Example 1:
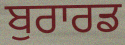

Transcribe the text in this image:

ਬੁਰਾਰਡ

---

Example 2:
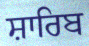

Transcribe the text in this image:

ਸ਼ਾਰਿਬ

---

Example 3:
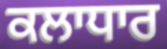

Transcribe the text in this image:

ਕਲਾਧਾਰ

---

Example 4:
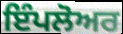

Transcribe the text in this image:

ਇੰਪਲੋਅਰ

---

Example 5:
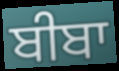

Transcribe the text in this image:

ਬੀਬਾ